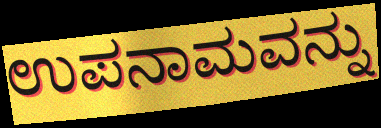
ಉಪನಾಮವನ್ನು